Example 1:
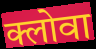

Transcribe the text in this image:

क्लोवा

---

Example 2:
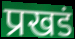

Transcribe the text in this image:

प्रखडं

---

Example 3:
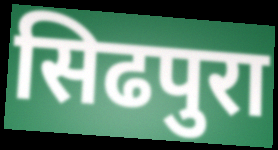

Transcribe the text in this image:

सिढपुरा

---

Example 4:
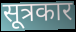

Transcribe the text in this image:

सूत्रकार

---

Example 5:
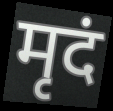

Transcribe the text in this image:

मृदं